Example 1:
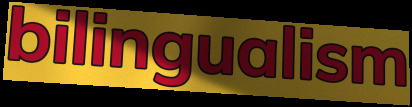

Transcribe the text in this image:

bilingualism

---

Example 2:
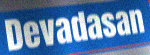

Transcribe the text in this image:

Devadasan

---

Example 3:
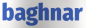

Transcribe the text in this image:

baghnar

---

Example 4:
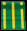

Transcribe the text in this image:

ili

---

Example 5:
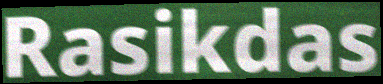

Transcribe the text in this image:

Rasikdas